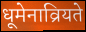
धूमेनाव्रियते